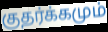
குதர்க்கமும்